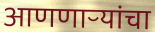
आणणाऱ्यांचा